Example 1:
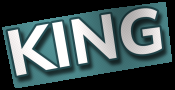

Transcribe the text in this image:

KING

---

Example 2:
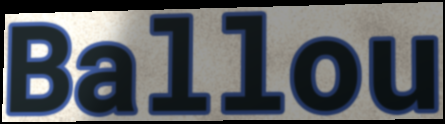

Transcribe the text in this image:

Ballou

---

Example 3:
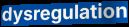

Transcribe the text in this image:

dysregulation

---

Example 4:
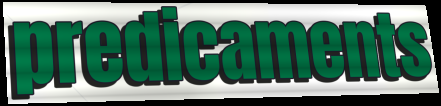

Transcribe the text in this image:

predicaments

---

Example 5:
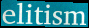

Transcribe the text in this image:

elitism